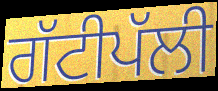
ਗੱਟੀਪੱਲੀ